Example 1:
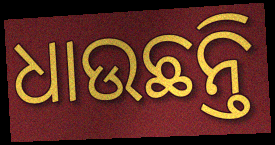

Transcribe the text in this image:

ଧାଉଛନ୍ତି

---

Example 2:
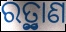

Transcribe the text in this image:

ରତ୍ର୍ଥାଣ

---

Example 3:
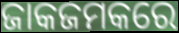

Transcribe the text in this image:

ଜାକଜମକରେ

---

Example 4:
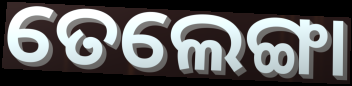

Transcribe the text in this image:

ତେଲେଙ୍ଗା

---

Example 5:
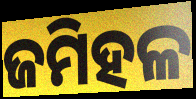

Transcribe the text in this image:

ଜମିହଳ